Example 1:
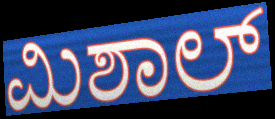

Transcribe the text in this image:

ಮಿಶಾಲ್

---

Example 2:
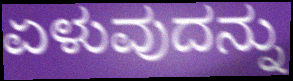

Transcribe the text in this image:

ಏಳುವುದನ್ನು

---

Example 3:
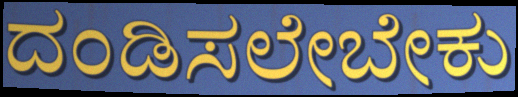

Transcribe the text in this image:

ದಂಡಿಸಲೇಬೇಕು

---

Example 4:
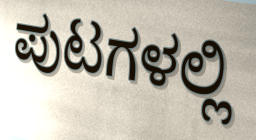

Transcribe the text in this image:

ಪುಟಗಳಲ್ಲಿ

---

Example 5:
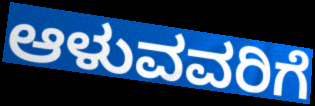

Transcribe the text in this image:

ಆಳುವವರಿಗೆ